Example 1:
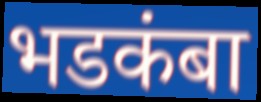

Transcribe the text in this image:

भडकंबा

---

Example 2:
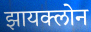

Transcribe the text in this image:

झायक्लोन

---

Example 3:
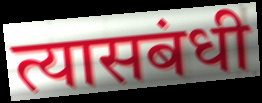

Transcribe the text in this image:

त्यासबंधी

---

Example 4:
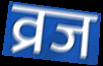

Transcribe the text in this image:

व्रज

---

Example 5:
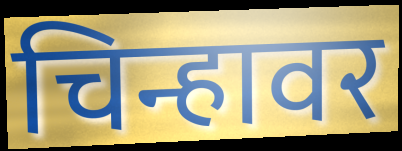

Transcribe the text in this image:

चिन्हावर